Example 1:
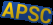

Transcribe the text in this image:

APSC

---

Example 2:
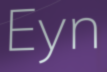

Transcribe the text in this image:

Eyn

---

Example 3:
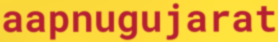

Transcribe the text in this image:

aapnugujarat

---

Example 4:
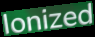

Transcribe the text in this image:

Ionized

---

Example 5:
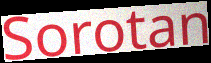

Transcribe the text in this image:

Sorotan